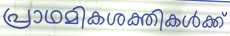
പ്രാഥമികശക്തികൾക്ക്